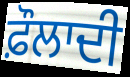
ਫ਼ੌਲਾਦੀ